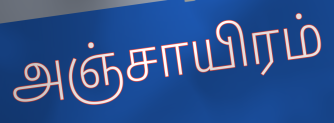
அஞ்சாயிரம்